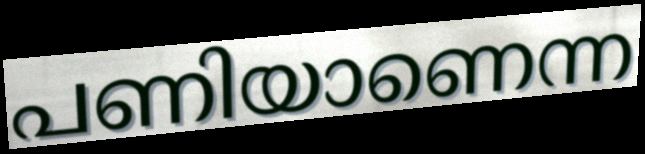
പണിയാണെന്ന